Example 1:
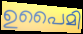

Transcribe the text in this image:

ഉപൈമി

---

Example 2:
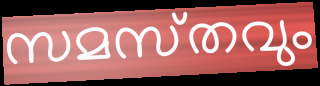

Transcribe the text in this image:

സമസ്‌തവും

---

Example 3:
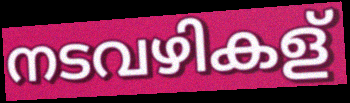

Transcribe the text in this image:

നടവഴികള്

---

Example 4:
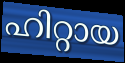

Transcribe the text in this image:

ഹിറ്റായ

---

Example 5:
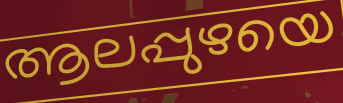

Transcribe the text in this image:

ആലപ്പുഴയെ